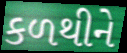
કળથીને